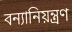
বন্যানিয়ন্ত্রণ